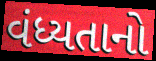
વંધ્યતાનો